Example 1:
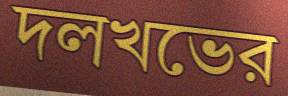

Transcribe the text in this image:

দলখভের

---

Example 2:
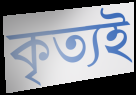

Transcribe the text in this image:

কৃত্যই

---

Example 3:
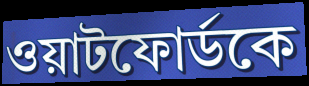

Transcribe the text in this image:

ওয়াটফোর্ডকে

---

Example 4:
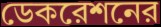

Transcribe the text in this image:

ডেকরেশনের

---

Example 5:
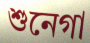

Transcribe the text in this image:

শুনেগা